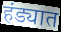
हंड्यात